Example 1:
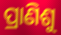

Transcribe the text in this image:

ପ୍ରାଣିଶୁ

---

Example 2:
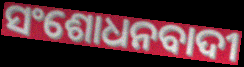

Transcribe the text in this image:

ସଂଶୋଧନବାଦୀ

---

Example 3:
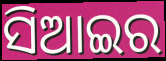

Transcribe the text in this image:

ସିଆଇର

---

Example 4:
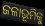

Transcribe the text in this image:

ଜଳାଭୂମିକୁ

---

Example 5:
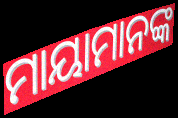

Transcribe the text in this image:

ମାୟାମାନଙ୍କ